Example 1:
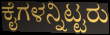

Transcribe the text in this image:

ಕೈಗಳನ್ನಿಟ್ಟರು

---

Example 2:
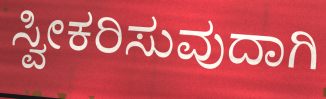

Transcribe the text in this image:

ಸ್ವೀಕರಿಸುವುದಾಗಿ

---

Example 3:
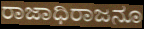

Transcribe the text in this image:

ರಾಜಾಧಿರಾಜನೂ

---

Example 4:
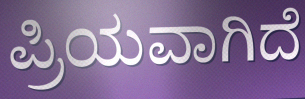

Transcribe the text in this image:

ಪ್ರಿಯವಾಗಿದೆ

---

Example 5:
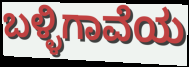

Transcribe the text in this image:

ಬಳ್ಳಿಗಾವೆಯ